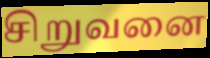
சிறுவனை